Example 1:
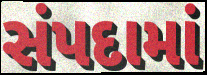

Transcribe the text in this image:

સંપદામાં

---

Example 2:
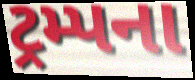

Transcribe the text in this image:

ટ્રમ્પના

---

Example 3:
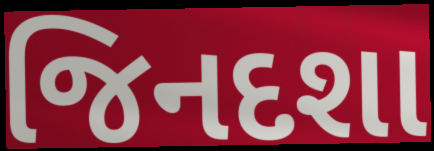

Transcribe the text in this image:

જિનદશા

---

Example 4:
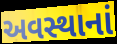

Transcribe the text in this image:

અવસ્થાનાં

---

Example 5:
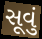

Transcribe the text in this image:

સૂવું